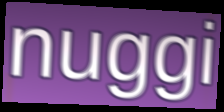
nuggi